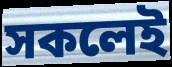
সকলেই